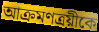
আক্রমণত্রয়ীকে